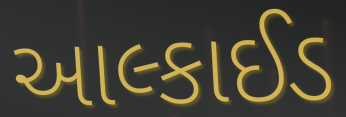
આલ્કાઈડ